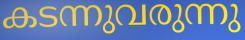
കടന്നുവരുന്നു